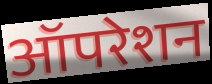
ऑपरेशन